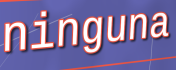
ninguna